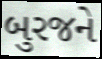
બુરજને